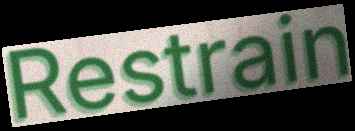
Restrain